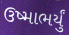
ઉષ્માભર્યું